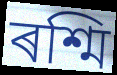
ৰশ্মি